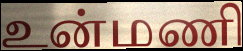
உன்மணி